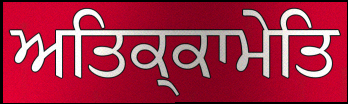
ਅਤਿਕ੍ਕਾਮੇਤਿ